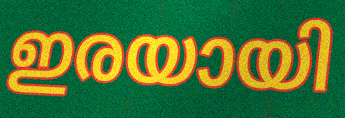
ഇരയായി